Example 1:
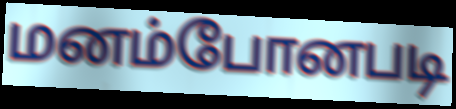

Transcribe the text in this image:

மனம்போனபடி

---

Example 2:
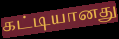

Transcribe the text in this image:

கட்டியானது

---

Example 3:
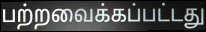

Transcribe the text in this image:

பற்றவைக்கப்பட்டது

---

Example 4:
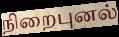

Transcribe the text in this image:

நிறைபுனல்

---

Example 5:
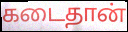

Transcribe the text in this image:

கடைதான்